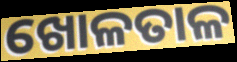
ଖୋଳତାଳ